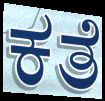
ಕತೆ